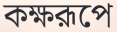
কক্ষরূপে